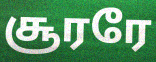
சூரரே